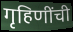
गृहिणींची